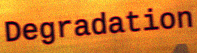
Degradation